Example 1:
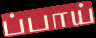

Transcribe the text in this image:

ப்பாய்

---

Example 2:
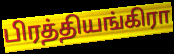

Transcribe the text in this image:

பிரத்தியங்கிரா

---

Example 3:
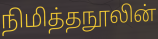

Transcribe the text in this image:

நிமித்தநூலின்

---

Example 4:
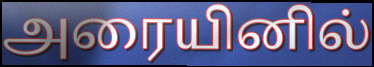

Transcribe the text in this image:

அரையினில்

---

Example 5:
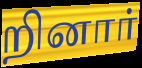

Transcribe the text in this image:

றினார்